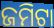
ଜମିଟା